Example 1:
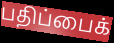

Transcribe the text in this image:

பதிப்பைக்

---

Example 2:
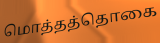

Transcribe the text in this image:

மொத்தத்தொகை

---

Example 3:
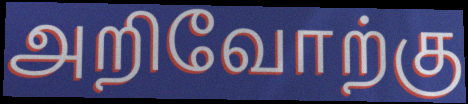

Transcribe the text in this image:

அறிவோற்கு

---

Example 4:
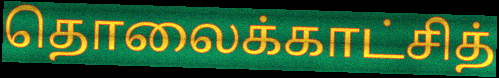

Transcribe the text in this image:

தொலைக்காட்சித்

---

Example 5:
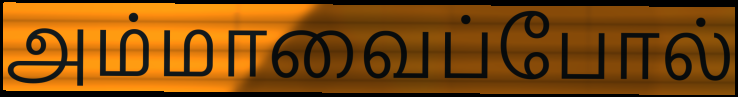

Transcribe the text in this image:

அம்மாவைப்போல்